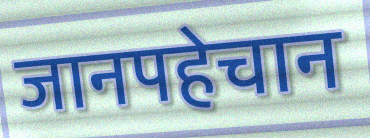
जानपहेचान